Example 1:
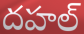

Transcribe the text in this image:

దహల్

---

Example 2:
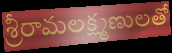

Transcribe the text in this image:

శ్రీరామలక్ష్మణులతో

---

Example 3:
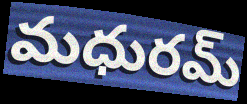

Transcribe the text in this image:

మధురమ్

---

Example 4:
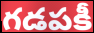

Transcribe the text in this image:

గడపకీ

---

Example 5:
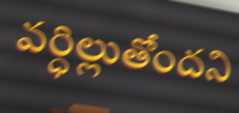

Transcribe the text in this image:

వర్ధిల్లుతోందని